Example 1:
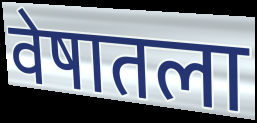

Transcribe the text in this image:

वेषातला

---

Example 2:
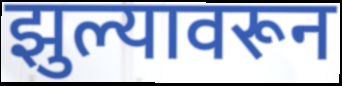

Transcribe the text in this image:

झुल्यावरून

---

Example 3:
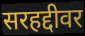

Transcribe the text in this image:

सरहद्दीवर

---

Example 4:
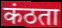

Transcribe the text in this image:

कंठता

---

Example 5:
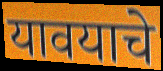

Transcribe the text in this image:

यावयाचे